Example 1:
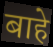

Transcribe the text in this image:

बाहे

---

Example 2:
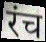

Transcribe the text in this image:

रंच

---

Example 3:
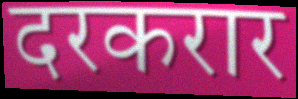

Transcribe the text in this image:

दरकरार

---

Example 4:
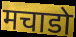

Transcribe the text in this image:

मचाडो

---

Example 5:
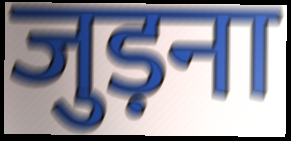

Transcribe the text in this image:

जुड़ना